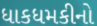
ધાકધમકીનો